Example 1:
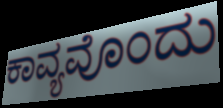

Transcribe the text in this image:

ಕಾವ್ಯವೊಂದು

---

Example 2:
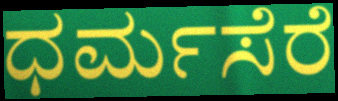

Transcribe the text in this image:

ಧರ್ಮಸೆರೆ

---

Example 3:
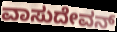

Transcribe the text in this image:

ವಾಸುದೇವನ್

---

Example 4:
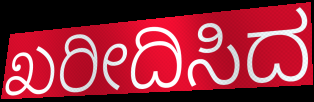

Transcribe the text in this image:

ಖರೀದಿಸಿದ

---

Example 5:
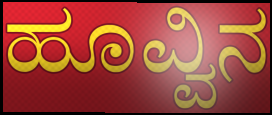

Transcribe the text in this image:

ಹೂವ್ವಿನ